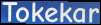
Tokekar